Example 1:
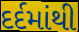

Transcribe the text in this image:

દર્દમાંથી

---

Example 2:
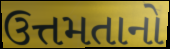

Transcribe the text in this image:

ઉત્તમતાનો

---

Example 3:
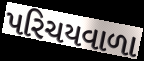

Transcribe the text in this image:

પરિચયવાળા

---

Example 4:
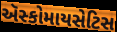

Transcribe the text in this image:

ઍસ્કોમાયસેટિસ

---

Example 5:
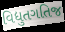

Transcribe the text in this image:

વિદ્યુતગતિજ